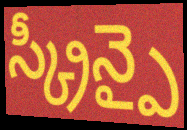
స్క్రీన్పై